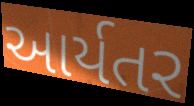
આર્યતર